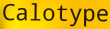
Calotype